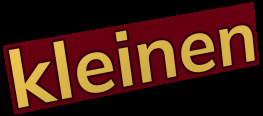
kleinen